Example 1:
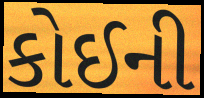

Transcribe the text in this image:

કોઈની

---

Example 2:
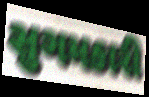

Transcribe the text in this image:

સુગમકારી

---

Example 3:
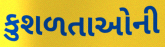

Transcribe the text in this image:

કુશળતાઓની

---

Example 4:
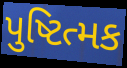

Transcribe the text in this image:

પુષ્ટિત્મક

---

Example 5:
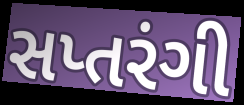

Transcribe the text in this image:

સપ્તરંગી